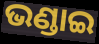
ଭଣ୍ଡାଇ